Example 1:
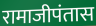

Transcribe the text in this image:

रामाजीपंतास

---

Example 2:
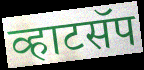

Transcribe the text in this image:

व्हाटसॅप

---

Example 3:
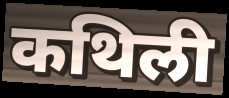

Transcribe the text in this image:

कथिली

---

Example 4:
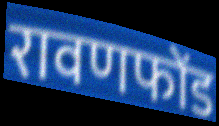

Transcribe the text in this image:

रावणफोंड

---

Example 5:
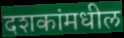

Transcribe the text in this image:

दशकांमधील